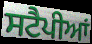
ਸਟੈਪੀਆਂ